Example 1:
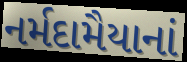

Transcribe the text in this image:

નર્મદામૈયાનાં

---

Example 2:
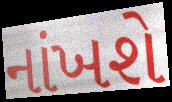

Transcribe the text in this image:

નાંખશે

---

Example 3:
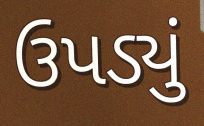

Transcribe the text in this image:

ઉપડ્યું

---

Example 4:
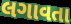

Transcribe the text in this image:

લગાવતા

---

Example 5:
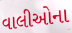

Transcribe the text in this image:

વાલીઓના